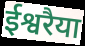
ईश्वरैया